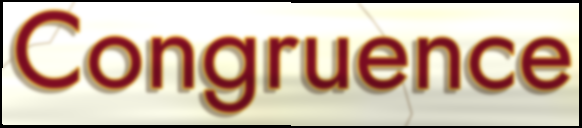
Congruence